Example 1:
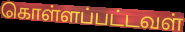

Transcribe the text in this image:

கொள்ளப்பட்டவள்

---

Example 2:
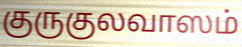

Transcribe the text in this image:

குருகுலவாஸம்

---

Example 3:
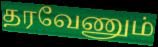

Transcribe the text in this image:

தரவேணும்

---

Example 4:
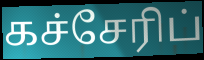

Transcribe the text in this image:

கச்சேரிப்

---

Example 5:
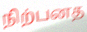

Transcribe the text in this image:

நிற்பனத